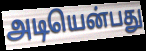
அடியென்பது